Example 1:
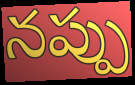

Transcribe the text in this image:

నప్పు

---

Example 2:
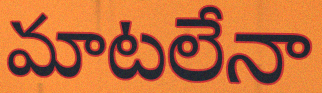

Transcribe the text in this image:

మాటలేనా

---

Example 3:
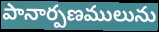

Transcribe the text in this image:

పానార్పణములును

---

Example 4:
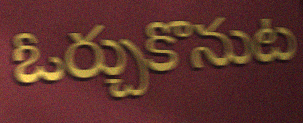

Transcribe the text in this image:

ఓర్చుకొనుట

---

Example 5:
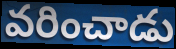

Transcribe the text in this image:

వరించాడు